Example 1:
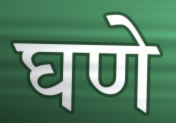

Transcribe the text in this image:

घणे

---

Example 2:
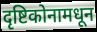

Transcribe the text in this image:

दृष्टिकोनामधून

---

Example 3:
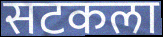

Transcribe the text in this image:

सटकला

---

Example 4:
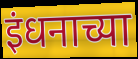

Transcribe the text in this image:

इंधनाच्या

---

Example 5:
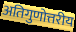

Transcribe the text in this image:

अतिगुणोत्तरीय